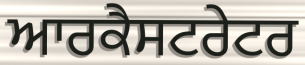
ਆਰਕੈਸਟਰੇਟਰ